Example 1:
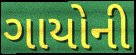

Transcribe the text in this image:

ગાયોની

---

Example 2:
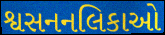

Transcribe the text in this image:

શ્વસનનલિકાઓ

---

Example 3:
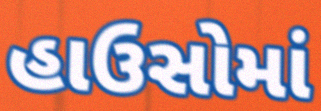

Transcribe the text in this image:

હાઉસોમાં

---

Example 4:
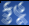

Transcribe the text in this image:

કુહૂ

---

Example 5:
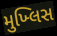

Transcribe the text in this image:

મુખ્લિસ